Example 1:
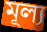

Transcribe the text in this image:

মূল্য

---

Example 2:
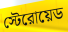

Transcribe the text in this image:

স্টেরোয়েড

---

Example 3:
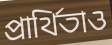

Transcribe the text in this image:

প্রার্থিতাও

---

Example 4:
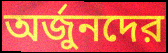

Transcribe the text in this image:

অর্জুনদের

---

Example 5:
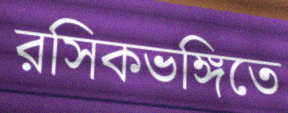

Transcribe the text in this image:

রসিকভঙ্গিতে